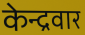
केन्द्रवार